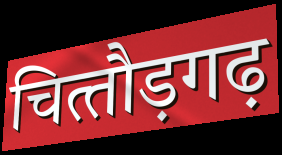
चित्‍तौड़गढ़